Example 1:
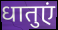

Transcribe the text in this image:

धातुएं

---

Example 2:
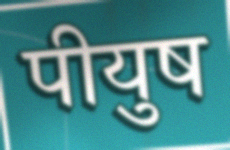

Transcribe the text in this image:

पीयुष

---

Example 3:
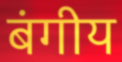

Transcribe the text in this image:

बंगीय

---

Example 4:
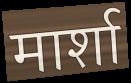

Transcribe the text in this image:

मार्शा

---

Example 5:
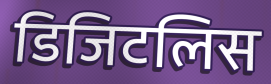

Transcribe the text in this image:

डिजिटलिस